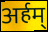
अर्हम्